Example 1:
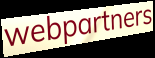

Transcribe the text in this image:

webpartners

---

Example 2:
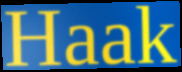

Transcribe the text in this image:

Haak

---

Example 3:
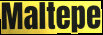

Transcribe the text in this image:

Maltepe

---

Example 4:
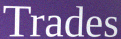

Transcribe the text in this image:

Trades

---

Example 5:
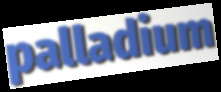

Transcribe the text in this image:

palladium